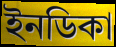
ইনডিকা